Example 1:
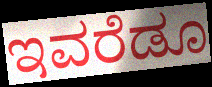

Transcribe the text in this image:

ಇವರೆಡೂ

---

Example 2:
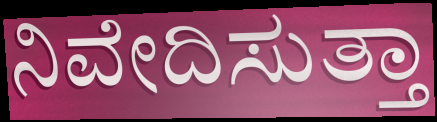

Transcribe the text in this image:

ನಿವೇದಿಸುತ್ತಾ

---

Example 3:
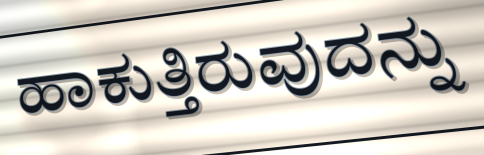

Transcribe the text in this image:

ಹಾಕುತ್ತಿರುವುದನ್ನು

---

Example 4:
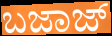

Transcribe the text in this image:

ಬಜಾಜ್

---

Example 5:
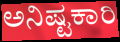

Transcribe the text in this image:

ಅನಿಷ್ಟಕಾರಿ